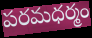
పరమధర్మం